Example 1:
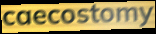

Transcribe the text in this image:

caecostomy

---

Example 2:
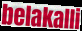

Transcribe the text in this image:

belakalli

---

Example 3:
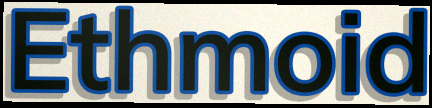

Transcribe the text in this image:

Ethmoid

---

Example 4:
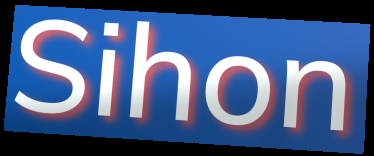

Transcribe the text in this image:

Sihon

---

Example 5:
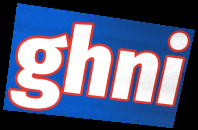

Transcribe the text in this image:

ghni